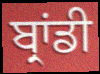
ਬ੍ਰਾਂਡੀ